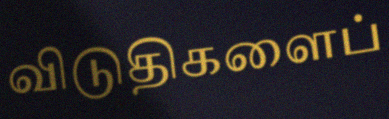
விடுதிகளைப்